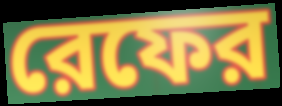
রেফের